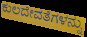
ಕುಲದೇವತೆಗಳನ್ನು